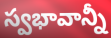
స్వభావాన్నీ